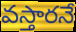
వస్తారనే